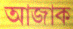
আজাক